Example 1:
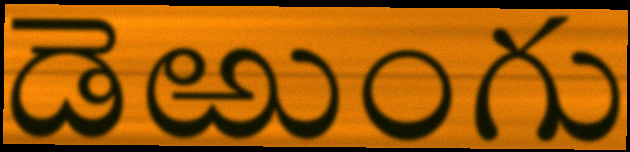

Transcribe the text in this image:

డెఱుంగు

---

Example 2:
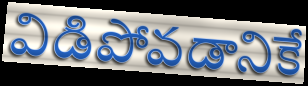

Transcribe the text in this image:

విడిపోవడానికే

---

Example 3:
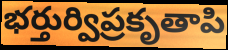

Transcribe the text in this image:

భర్తుర్విప్రకృతాపి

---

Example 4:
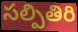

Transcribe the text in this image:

సల్పితిరి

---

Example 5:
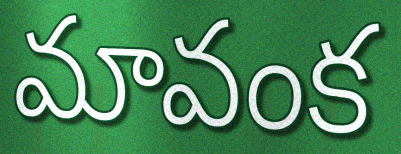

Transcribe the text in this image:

మావంక